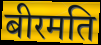
बीरमति